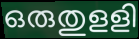
ഒരുതുളളി